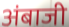
अंबाजी